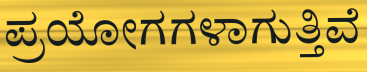
ಪ್ರಯೋಗಗಳಾಗುತ್ತಿವೆ